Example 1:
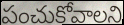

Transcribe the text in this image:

పంచుకోవాలని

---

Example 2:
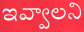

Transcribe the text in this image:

ఇవ్వాలని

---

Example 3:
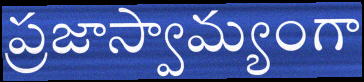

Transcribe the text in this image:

ప్రజాస్వామ్యంగా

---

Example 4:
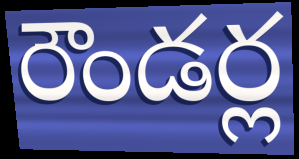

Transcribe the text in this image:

రౌండర్ల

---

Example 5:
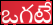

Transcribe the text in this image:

ఒగటే